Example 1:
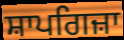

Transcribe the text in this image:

ਸ਼ਾਪਗਿਜ਼ਾ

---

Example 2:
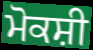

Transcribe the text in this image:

ਮੋਕਸ਼ੀ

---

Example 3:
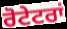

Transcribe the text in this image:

ਰੋਟੇਟਰਾਂ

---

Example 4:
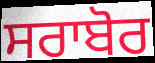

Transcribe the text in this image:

ਸਰਾਬੋਰ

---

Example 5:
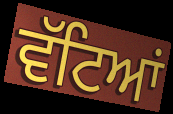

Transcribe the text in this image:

ਵੱਟਿਆਂ